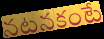
నటనకంటే